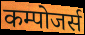
कम्पोजर्स